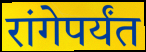
रांगेपर्यंत